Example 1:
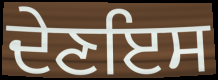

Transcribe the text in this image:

ਦੇਣਇਸ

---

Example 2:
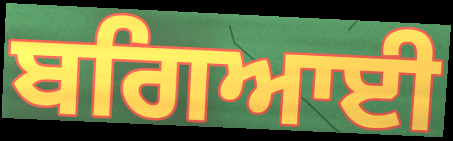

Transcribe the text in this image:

ਬਗਿਆਈ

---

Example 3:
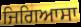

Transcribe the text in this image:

ਜਿਗਿਆਸਾ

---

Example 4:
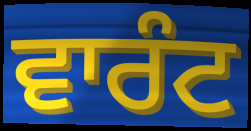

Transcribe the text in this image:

ਵਾਰੰਟ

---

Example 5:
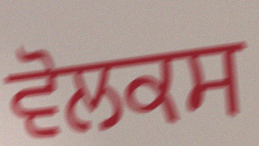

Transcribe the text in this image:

ਵੋਲਕਸ